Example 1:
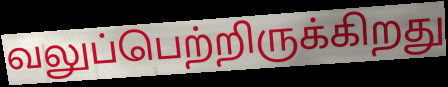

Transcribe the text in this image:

வலுப்பெற்றிருக்கிறது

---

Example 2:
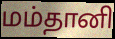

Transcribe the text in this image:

மம்தானி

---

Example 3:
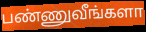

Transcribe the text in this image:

பண்ணுவீங்களா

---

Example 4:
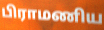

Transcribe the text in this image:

பிராமணிய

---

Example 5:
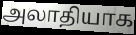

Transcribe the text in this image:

அலாதியாக